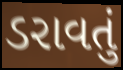
ડરાવતું